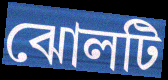
ঝোলটি